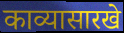
काव्यासारखे